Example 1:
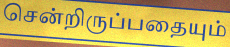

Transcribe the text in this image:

சென்றிருப்பதையும்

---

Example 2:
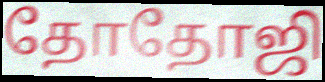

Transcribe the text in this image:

தோதோஜி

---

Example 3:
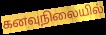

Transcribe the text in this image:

கனவுநிலையில்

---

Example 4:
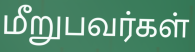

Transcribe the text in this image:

மீறுபவர்கள்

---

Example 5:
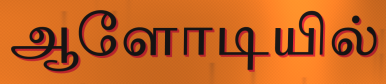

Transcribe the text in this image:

ஆளோடியில்